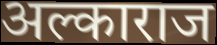
अल्काराज